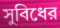
সুবিধের